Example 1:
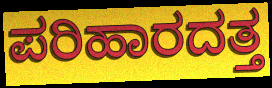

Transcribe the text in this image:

ಪರಿಹಾರದತ್ತ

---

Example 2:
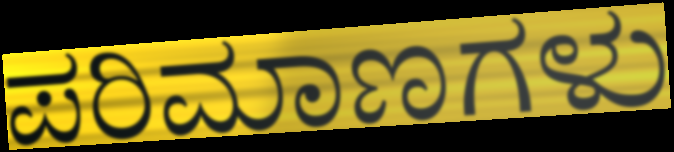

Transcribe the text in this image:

ಪರಿಮಾಣಗಳು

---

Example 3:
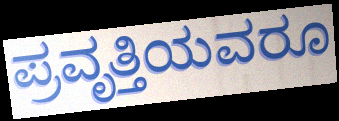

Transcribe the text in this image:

ಪ್ರವೃತ್ತಿಯವರೂ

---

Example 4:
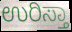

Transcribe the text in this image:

ಉರಿಸ್ತಾ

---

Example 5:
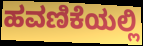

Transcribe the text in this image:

ಹವಣಿಕೆಯಲ್ಲಿ